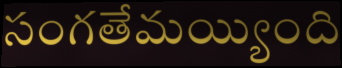
సంగతేమయ్యింది